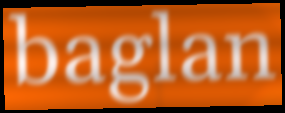
baglan